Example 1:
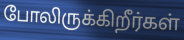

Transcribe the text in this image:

போலிருக்கிறீர்கள்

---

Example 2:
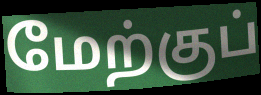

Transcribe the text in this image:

மேற்குப்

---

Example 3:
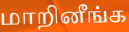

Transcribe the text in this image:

மாறினீங்க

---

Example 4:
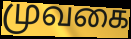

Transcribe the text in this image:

முவகை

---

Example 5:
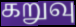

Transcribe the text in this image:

கறுவு